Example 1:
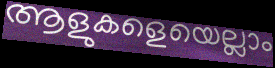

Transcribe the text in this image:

ആളുകളെയെല്ലാം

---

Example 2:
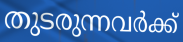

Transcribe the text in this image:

തുടരുന്നവർക്ക്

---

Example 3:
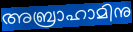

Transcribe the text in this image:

അബ്രാഹാമിനു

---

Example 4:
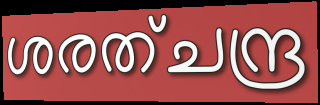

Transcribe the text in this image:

ശരത്ചന്ദ്ര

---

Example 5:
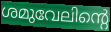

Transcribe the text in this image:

ശമുവേലിന്റെ